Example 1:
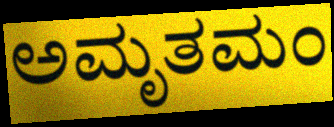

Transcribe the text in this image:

ಅಮೃತಮಂ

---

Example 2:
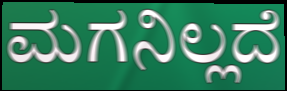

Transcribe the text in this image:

ಮಗನಿಲ್ಲದೆ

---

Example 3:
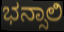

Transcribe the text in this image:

ಭನ್ಸಾಲಿ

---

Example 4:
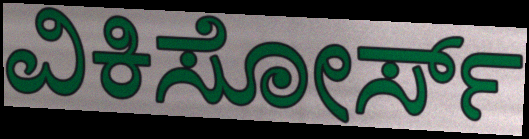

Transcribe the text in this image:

ವಿಕಿಸೋರ್ಸ್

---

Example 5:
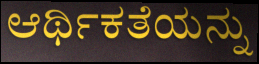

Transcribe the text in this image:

ಆರ್ಥಿಕತೆಯನ್ನು